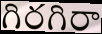
గిరగిరా